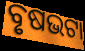
ବୃଷଭଟା